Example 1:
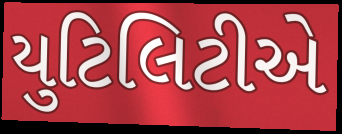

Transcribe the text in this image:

યુટિલિટીએ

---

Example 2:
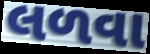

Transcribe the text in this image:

લળવા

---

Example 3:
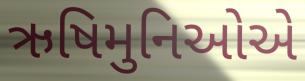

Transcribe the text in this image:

ઋષિમુનિઓએ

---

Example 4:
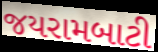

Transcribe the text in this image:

જયરામબાટી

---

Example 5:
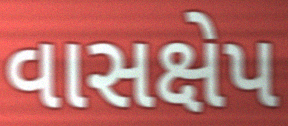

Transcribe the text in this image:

વાસક્ષેપ